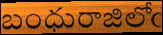
బంధురాజిలోఁ